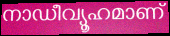
നാഡീവ്യൂഹമാണ്